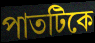
পাতটিকে